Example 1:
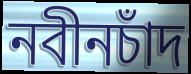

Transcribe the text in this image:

নবীনচাঁদ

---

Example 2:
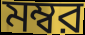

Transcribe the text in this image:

মম্বর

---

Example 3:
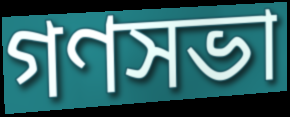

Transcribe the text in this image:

গণসভা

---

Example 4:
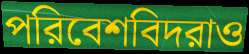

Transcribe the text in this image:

পরিবেশবিদরাও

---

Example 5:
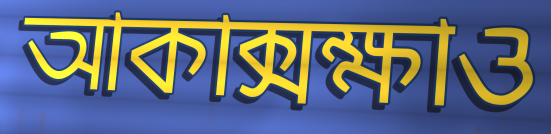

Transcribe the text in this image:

আকাক্সক্ষাও